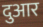
दुआर